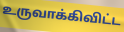
உருவாக்கிவிட்ட